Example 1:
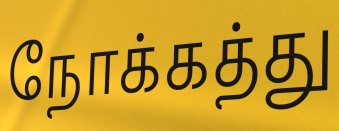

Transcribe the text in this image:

நோக்கத்து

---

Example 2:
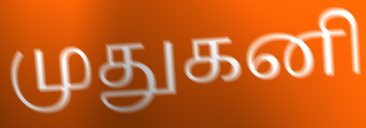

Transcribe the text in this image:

முதுகனி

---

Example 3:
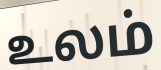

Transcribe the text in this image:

உலம்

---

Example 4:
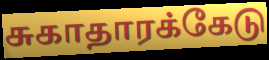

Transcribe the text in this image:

சுகாதாரக்கேடு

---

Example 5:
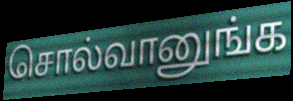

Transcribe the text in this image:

சொல்வானுங்க